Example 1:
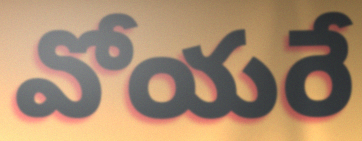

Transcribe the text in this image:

వోయరే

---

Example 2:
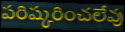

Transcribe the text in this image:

పరిష్కరించలేవు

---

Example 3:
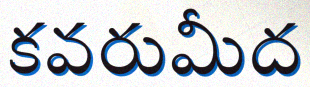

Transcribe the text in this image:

కవరుమీద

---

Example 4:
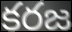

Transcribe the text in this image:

కరజ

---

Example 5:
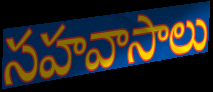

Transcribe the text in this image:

సహవాసాలు